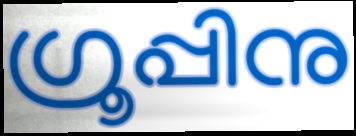
ഗ്രൂപ്പിനു